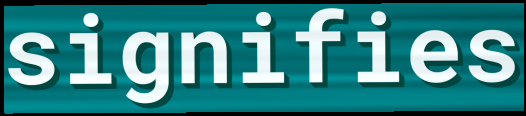
signifies